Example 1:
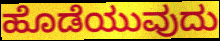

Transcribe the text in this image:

ಹೊಡೆಯುವುದು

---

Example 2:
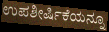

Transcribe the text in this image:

ಉಪಶೀರ್ಷಿಕೆಯನ್ನೂ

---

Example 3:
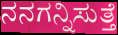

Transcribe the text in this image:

ನನಗನ್ನಿಸುತ್ತೆ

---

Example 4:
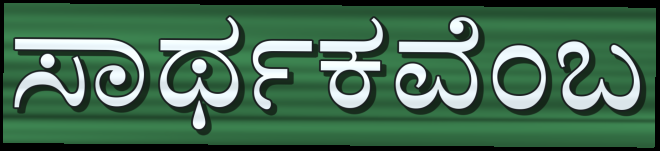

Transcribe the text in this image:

ಸಾರ್ಥಕವೆಂಬ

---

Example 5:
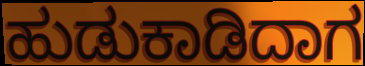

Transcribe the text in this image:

ಹುಡುಕಾಡಿದಾಗ